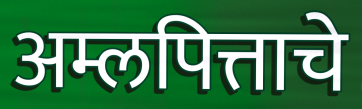
अम्लपित्ताचे